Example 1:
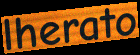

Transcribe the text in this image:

lherato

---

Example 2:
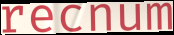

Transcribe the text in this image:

recnum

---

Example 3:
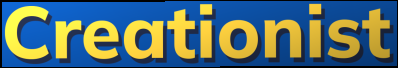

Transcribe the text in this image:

Creationist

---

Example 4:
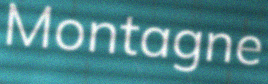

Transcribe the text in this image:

Montagne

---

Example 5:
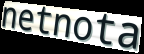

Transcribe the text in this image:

netnota